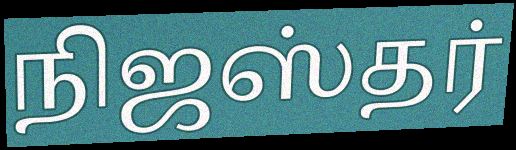
நிஜஸ்தர்